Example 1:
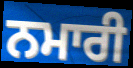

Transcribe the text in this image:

ਨਮਾਰੀ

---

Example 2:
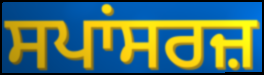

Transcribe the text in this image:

ਸਪਾਂਸਰਜ਼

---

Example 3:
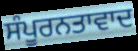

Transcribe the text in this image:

ਸੰਪੂਰਨਤਾਵਾਦ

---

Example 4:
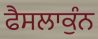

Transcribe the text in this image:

ਫੈਸਲਾਕੁੰਨ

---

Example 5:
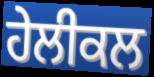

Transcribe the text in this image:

ਹੇਲੀਕਲ